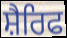
ਸ਼ੈਰਿਫ